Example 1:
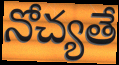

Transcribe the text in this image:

నోచ్యతే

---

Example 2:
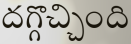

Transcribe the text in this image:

దగ్గొచ్చింది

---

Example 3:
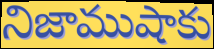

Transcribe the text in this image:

నిజాముషాకు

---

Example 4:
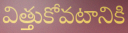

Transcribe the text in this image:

విత్తుకోవటానికి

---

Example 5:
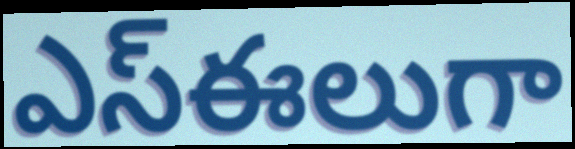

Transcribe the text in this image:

ఎస్ఈలుగా